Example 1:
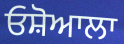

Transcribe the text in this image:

ਓਸ਼ੋਆਲਾ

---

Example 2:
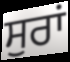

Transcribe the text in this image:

ਸੁਰਾਂ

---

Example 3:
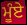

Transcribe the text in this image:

ਮੂੰਏ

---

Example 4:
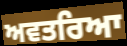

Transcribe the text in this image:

ਅਵਤਰਿਆ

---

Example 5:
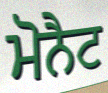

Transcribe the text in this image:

ਮੋਨੈਟ